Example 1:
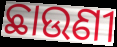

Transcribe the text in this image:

ଛାଉଣୀ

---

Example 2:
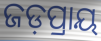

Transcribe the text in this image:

ଜଡ଼ପ୍ରାୟ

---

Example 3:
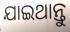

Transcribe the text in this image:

ଯାଇଥାନ୍ତୁ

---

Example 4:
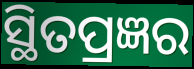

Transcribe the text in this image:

ସ୍ଥିତପ୍ରଜ୍ଞର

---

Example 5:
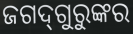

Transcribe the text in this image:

ଜଗଦ୍‌ଗୁରୁଙ୍କର